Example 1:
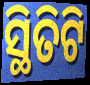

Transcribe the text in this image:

ସ୍ଥିତିଟି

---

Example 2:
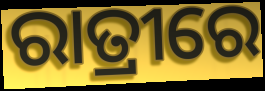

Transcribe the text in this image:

ରାତ୍ରୀରେ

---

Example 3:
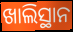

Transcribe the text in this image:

ଖାଲିସ୍ଥାନ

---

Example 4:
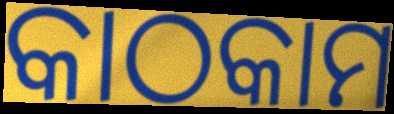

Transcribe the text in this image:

କାଠକାମ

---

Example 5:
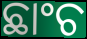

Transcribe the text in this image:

ଛାଂଚ